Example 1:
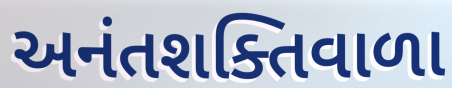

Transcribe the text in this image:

અનંતશક્તિવાળા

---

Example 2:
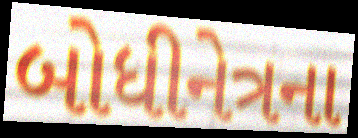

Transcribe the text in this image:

બોધીનેત્રના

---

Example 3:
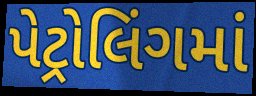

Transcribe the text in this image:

પેટ્રોલિંગમાં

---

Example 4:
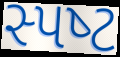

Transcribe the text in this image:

સ્પષ્‍ટ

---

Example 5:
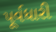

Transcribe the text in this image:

પૂર્વધારી